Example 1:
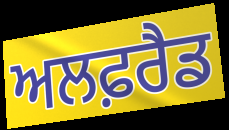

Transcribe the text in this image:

ਅਲਫ਼ਰੈਡ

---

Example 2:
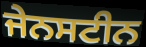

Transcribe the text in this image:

ਜੇਨਸਟੀਨ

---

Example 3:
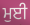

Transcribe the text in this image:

ਮੁਈ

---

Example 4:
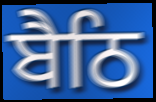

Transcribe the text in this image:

ਬੈਠਿ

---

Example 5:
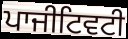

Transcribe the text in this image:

ਪਾਜੀਟਿਵਟੀ